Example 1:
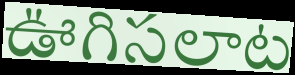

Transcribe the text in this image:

ఊగిసలాట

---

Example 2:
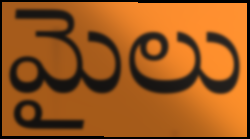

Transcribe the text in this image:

మైలు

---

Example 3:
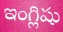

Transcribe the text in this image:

ఇంగ్లిషు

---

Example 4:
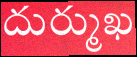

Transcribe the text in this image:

దుర్ముఖ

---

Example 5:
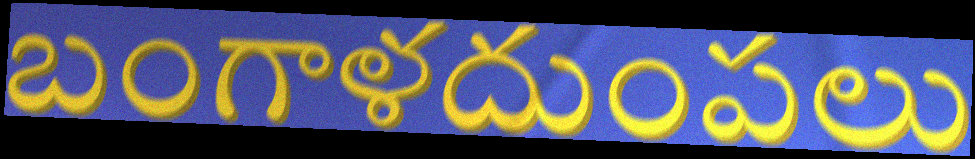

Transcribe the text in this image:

బంగాళదుంపలు